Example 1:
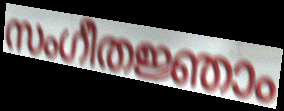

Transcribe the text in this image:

സംഗീതജ്ഞാം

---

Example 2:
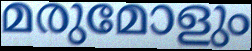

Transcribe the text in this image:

മരുമോളും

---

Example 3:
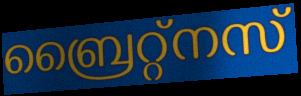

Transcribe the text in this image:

ബ്രൈറ്റ്നസ്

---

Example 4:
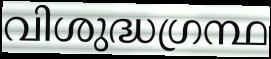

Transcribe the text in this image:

വിശുദ്ധഗ്രന്ഥ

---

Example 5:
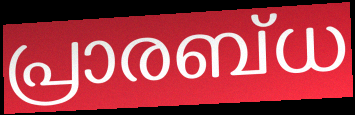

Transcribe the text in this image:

പ്രാരബ്ധ